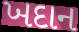
ખદાન